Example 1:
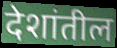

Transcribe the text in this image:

देशांतील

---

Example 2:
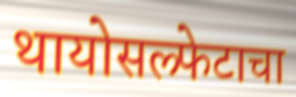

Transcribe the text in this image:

थायोसल्फेटाचा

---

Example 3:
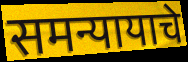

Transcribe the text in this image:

समन्यायाचे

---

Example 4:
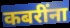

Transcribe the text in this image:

कबरींना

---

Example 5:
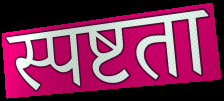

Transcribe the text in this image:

स्पष्टता